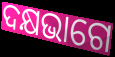
ଦକ୍ଷଭାଗେ